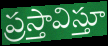
ప్రస్తావిస్తూ